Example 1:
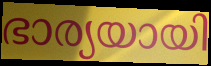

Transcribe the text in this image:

ഭാര്യയായി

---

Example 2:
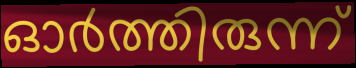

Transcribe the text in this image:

ഓർത്തിരുന്ന്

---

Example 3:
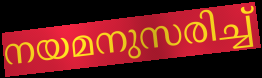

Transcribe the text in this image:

നയമനുസരിച്ച്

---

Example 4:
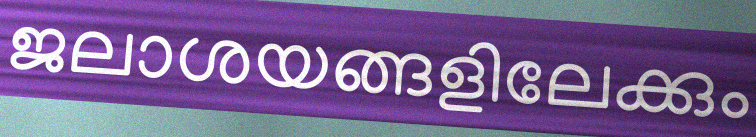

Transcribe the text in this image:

ജലാശയങ്ങളിലേക്കും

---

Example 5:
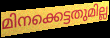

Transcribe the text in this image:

മിനക്കെട്ടതുമില്ല